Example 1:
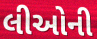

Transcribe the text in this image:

લીઓની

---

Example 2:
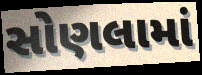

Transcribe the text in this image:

સોણલામાં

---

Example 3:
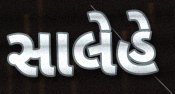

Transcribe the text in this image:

સાલેહે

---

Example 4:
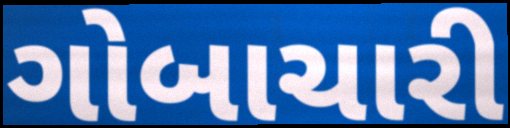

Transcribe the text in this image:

ગોબાચારી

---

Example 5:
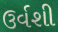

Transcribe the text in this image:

ઉર્વશી